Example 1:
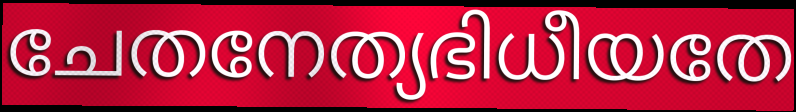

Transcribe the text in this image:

ചേതനേത്യഭിധീയതേ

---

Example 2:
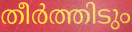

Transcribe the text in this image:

തീർത്തിടും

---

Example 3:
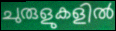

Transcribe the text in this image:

ചുരുളുകളിൽ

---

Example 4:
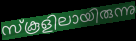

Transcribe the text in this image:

സ്കൂളിലായിരുന്നു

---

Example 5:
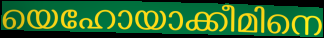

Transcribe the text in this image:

യെഹോയാക്കീമിനെ